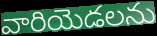
వారియెడలను